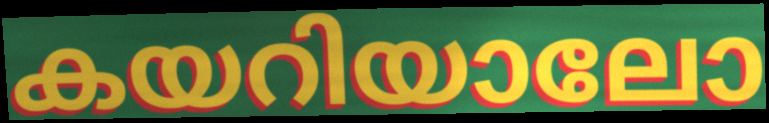
കയറിയാലോ